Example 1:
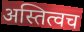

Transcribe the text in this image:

अस्तित्वच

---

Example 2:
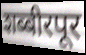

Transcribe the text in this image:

शब्बीरपूर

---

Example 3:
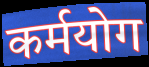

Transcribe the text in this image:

कर्मयोग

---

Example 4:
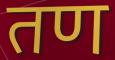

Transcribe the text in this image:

तण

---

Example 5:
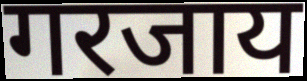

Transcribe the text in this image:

गरजाय